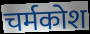
चर्मकोश